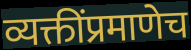
व्यक्तींप्रमाणेच